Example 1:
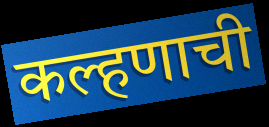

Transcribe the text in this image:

कल्हणाची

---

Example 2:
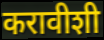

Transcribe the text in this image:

करावीशी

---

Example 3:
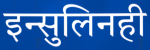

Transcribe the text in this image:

इन्सुलिनही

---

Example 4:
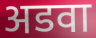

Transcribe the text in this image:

अडवा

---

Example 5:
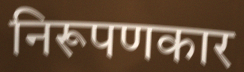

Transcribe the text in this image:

निरूपणकार